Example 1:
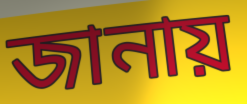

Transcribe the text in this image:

জানায়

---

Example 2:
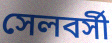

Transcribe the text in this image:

সেলবর্সী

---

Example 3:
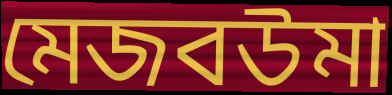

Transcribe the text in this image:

মেজবউমা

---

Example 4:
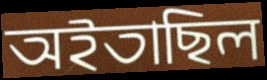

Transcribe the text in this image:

অইতাছিল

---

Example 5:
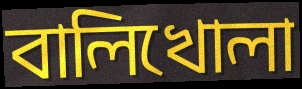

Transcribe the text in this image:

বালিখোলা